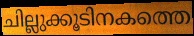
ചില്ലുക്കൂടിനകത്തെ